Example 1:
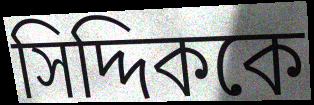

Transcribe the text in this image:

সিদ্দিককে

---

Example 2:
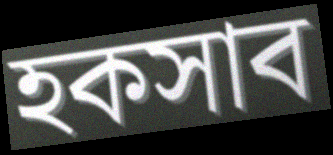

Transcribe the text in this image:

হকসাব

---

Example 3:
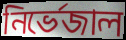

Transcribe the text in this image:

নির্ভেজাল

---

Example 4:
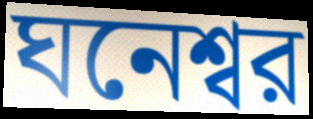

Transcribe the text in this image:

ঘনেশ্বর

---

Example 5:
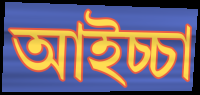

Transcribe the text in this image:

আইচ্চা